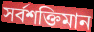
সৰ্বশক্তিমান